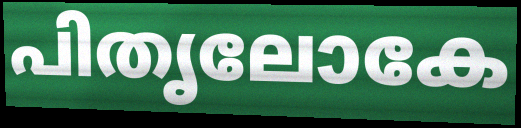
പിതൃലോകേ